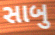
સાબુ